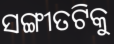
ସଙ୍ଗୀତଟିକୁ